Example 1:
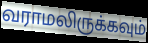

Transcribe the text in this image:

வராமலிருக்கவும்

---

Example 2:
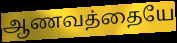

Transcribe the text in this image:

ஆணவத்தையே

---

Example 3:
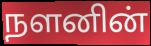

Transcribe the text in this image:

நளனின்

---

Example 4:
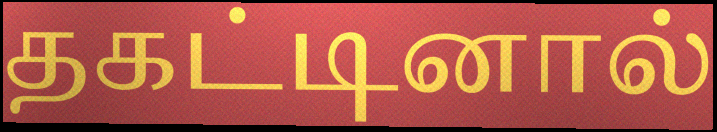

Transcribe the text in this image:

தகட்டினால்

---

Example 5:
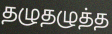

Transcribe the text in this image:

தழுதழுத்த